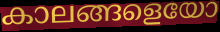
കാലങ്ങളെയോ